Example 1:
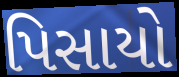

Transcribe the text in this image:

પિસાયો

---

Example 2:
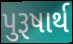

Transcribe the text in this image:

પુરૂષાર્થ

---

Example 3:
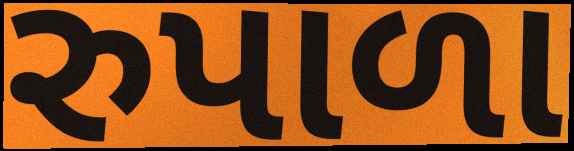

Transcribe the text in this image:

રુપાળા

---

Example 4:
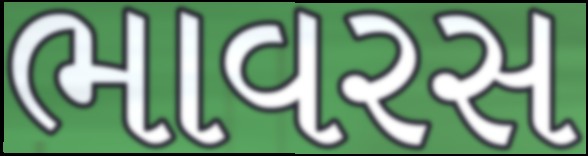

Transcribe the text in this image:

ભાવરસ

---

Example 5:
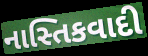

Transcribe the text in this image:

નાસ્તિકવાદી